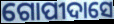
ଗୋପୀଦାସେ